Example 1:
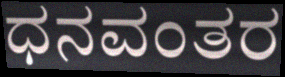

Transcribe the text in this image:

ಧನವಂತರ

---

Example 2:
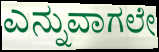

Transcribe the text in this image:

ಎನ್ನುವಾಗಲೇ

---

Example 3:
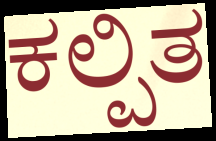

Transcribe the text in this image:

ಕಲ್ಪಿತ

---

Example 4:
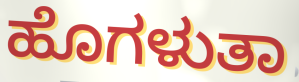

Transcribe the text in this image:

ಹೊಗಳುತಾ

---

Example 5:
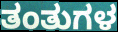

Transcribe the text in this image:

ತಂತುಗಳ